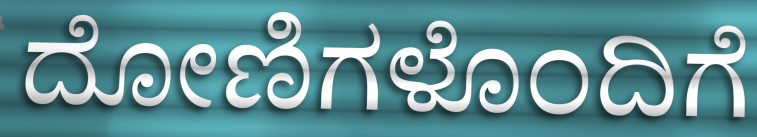
ದೋಣಿಗಳೊಂದಿಗೆ